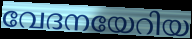
വേദനയേറിയ